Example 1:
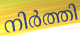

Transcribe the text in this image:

നിർത്തി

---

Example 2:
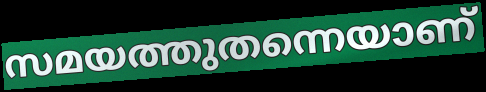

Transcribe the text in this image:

സമയത്തുതന്നെയാണ്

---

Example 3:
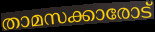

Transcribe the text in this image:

താമസക്കാരോട്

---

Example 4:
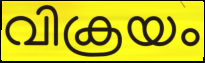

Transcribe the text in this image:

വിക്രയം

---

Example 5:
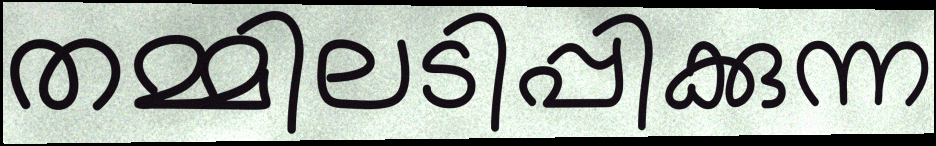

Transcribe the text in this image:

തമ്മിലടിപ്പിക്കുന്ന